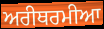
ਅਰੀਥਰਮੀਆ